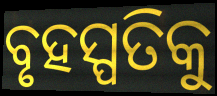
ବୃହସ୍ପତିକୁ